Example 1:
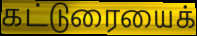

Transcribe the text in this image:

கட்டுரையைக்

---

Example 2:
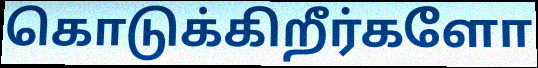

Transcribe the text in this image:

கொடுக்கிறீர்களோ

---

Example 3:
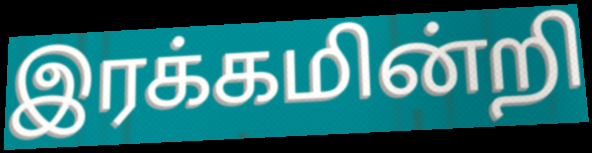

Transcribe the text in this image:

இரக்கமின்றி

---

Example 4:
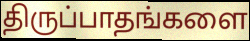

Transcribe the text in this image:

திருப்பாதங்களை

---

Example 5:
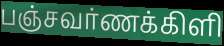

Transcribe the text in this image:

பஞ்சவர்ணக்கிளி